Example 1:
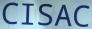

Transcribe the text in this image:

CISAC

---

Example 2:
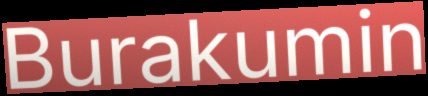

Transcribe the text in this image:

Burakumin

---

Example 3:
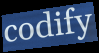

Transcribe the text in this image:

codify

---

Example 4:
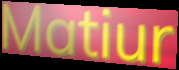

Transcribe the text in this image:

Matiur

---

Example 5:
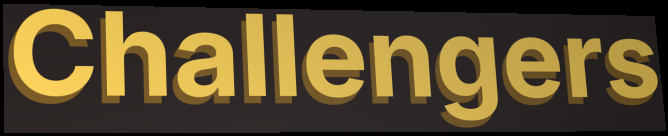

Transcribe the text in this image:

Challengers